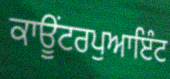
ਕਾਊਂਟਰਪੁਆਇੰਟ